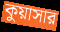
কুয়াসার